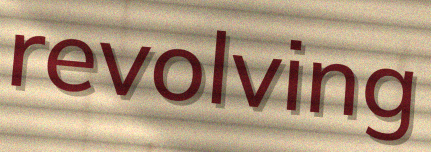
revolving